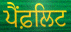
ਪੈਂਫ਼ਲਿਟ